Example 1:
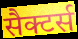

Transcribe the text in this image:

सैक्टर्स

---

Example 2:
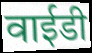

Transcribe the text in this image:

वाईडी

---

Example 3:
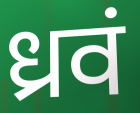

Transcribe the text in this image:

ध्रवं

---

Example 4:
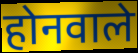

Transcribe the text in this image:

होनवाले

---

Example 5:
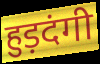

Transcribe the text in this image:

हुड़दंगी